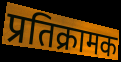
प्रतिक्रामक